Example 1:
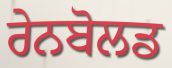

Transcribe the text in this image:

ਰੇਨਬੋਲਡ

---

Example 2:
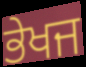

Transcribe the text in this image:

ਭੇਖਜ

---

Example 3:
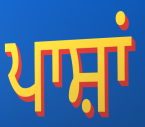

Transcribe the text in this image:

ਪਾਸ਼ਾਂ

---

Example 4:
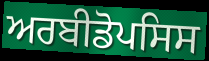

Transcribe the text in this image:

ਅਰਬੀਡੋਪਸਿਸ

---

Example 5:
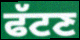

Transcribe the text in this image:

ਫੱਟਣ